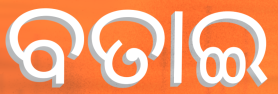
ବତାଇ